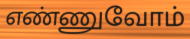
எண்ணுவோம்